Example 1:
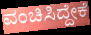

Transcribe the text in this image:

ವಂಚಿಸಿದ್ದೇಕೆ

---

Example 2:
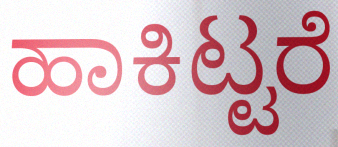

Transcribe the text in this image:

ಹಾಕಿಟ್ಟರೆ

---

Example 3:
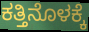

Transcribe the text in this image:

ಕತ್ತಿನೊಳಕ್ಕೆ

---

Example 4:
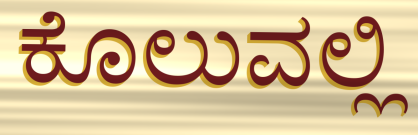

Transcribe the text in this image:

ಕೊಲುವಲ್ಲಿ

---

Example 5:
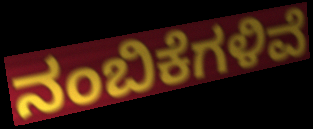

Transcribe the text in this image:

ನಂಬಿಕೆಗಳಿವೆ